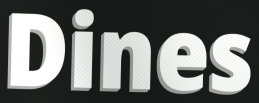
Dines